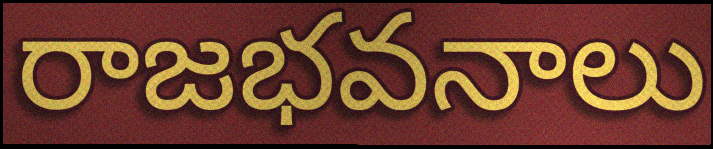
రాజభవనాలు